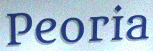
Peoria